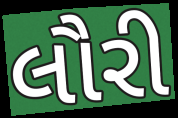
લૌરી